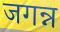
जगन्न